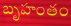
బృహంతం